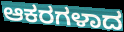
ಆಕರಗಳಾದ